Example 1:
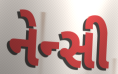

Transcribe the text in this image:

નેન્સી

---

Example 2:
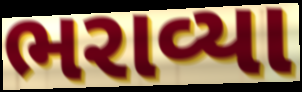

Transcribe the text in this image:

ભરાવ્યા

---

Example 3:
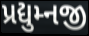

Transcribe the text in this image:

પ્રદ્યુમ્નજી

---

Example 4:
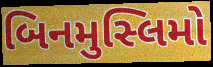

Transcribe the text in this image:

બિનમુસ્લિમો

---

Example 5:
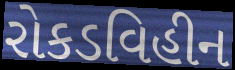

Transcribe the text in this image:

રોકડવિહીન